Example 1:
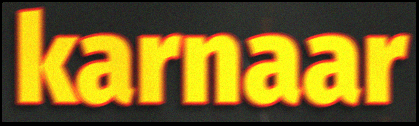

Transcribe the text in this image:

karnaar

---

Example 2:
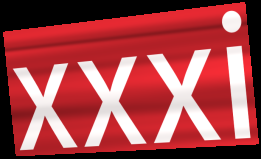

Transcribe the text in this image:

xxxi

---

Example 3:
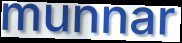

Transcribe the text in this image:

munnar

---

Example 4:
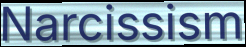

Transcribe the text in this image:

Narcissism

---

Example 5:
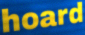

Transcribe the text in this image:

hoard